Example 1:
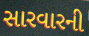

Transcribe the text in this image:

સારવારની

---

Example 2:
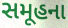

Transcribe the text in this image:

સમૂહના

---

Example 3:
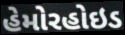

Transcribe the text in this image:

હેમોરહોઇડ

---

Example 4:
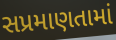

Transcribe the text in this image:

સપ્રમાણતામાં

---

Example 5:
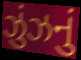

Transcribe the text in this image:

ઝુંઝનું